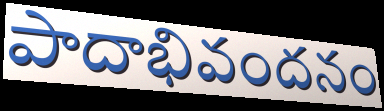
పాదాభివందనం